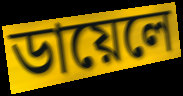
ডায়েলে